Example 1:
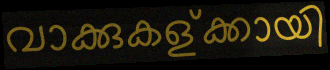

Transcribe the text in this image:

വാക്കുകള്ക്കായി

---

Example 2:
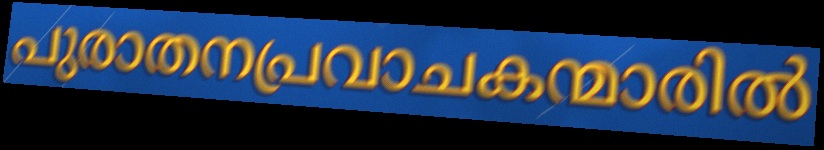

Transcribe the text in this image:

പുരാതനപ്രവാചകന്മാരിൽ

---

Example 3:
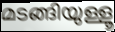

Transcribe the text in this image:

മടങ്ങിയുള്ളൂ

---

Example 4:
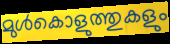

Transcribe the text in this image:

മുൾകൊളുത്തുകളും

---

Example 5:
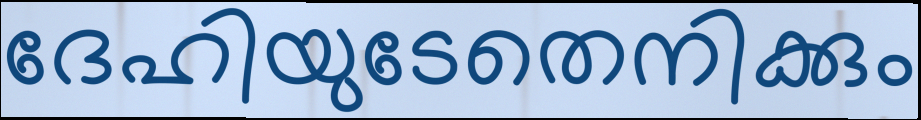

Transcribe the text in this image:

ദേഹിയുടേതെനിക്കും